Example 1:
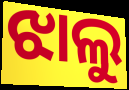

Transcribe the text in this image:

ଝାଲୁ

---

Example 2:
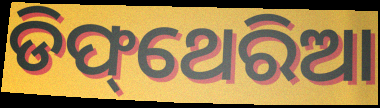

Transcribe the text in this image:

ଡିଫ୍‌ଥେରିଆ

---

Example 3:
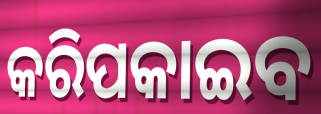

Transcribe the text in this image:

କରିପକାଇବ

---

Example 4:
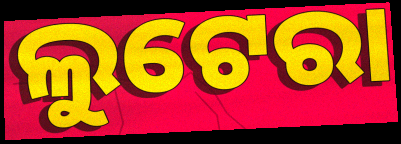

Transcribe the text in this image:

ଲୁଟେରା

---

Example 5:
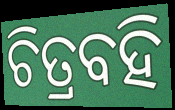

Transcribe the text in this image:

ଚିତ୍ରବହି